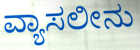
ವ್ಯಾಸಲೀನು